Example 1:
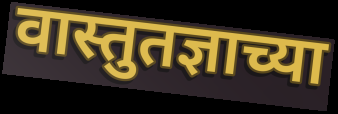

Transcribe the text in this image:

वास्तुतज्ञाच्या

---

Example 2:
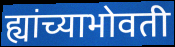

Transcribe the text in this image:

ह्यांच्याभोवती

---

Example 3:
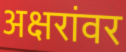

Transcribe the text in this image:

अक्षरांवर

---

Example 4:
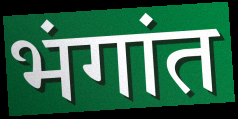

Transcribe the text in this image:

भंगांत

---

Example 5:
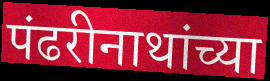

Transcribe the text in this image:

पंढरीनाथांच्या